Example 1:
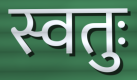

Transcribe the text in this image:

स्वतुः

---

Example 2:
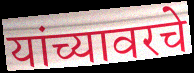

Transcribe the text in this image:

यांच्यावरचे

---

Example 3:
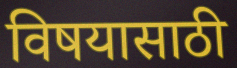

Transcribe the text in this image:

विषयासाठी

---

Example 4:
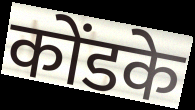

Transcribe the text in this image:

कोंडके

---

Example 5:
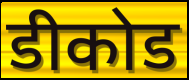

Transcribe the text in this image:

डीकोड